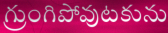
గ్రుంగిపోవుటకును